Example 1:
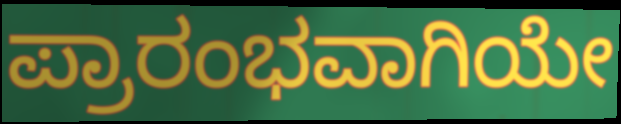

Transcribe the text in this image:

ಪ್ರಾರಂಭವಾಗಿಯೇ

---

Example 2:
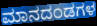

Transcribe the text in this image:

ಮಾನದಂಡಗಳ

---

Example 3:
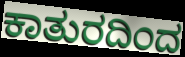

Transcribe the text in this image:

ಕಾತುರದಿಂದ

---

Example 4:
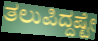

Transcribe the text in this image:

ತಲುಪಿದ್ದಷ್ಟೇ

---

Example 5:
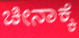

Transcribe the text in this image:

ಚೀನಾಕ್ಕೆ